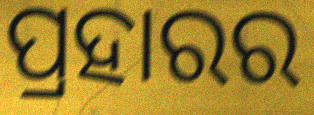
ପ୍ରହାରର